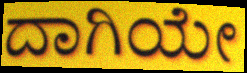
ದಾಗಿಯೇ